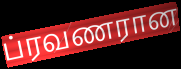
ப்ரவணரான